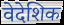
वेदेशिक